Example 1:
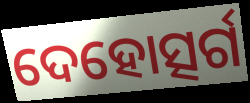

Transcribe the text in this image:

ଦେହୋତ୍ସର୍ଗ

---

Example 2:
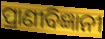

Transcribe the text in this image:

ପ୍ରାଣୀବିଜ୍ଞାନୀ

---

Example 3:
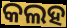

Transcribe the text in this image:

କଲହ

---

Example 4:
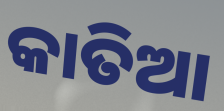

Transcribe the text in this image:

କାତିଆ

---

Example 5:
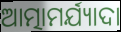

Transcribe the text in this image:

ଆତ୍ମାମର୍ଯ୍ୟାଦା